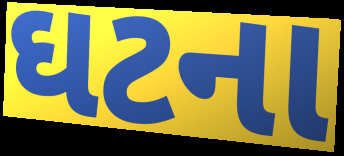
ઘટના